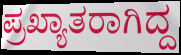
ಪ್ರಖ್ಯಾತರಾಗಿದ್ದ